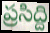
ప్రసిద్ది